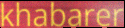
khabarer